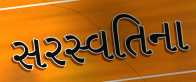
સરસ્વતિના